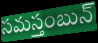
సమస్తంబున్